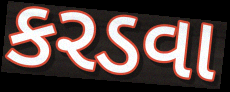
કરડવા